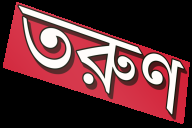
তরুণ